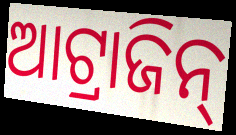
ଆଟ୍ରାଜିନ୍